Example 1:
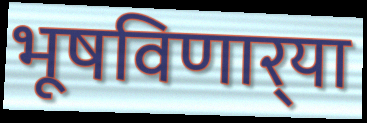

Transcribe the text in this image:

भूषविणार्‍या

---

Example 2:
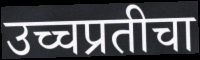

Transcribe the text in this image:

उच्चप्रतीचा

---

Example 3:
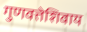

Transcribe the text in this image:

गुणवत्तेशिवाय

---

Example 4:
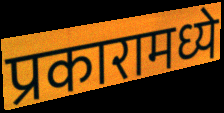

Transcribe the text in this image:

प्रकारामध्ये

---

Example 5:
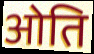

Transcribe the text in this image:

ओति